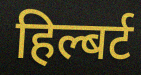
हिल्बर्ट